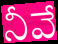
నీవే